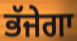
ਭੱਜੇਗਾ